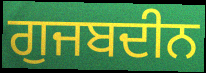
ਗੁਜਬਦੀਨ